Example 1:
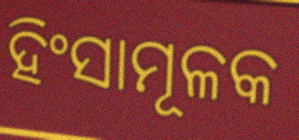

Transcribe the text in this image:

ହିଂସାମୂଳକ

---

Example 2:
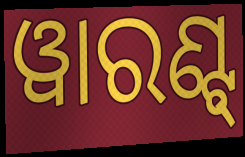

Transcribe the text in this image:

ୱାରଣ୍ଟ୍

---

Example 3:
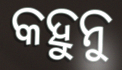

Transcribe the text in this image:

କହୁନୁ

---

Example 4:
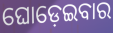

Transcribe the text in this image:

ଘୋଡ଼େଇବାର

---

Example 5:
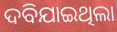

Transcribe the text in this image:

ଦବିଯାଇଥିଲା